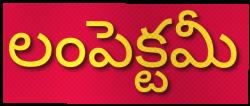
లంపెక్టమీ